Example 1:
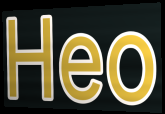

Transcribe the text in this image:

Heo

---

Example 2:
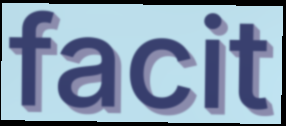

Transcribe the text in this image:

facit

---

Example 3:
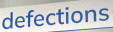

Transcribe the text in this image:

defections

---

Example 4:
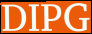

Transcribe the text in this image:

DIPG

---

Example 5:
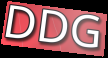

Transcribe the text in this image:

DDG